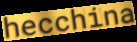
hecchina